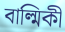
বাল্মিকী